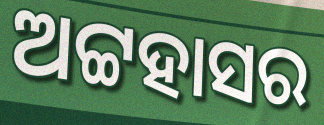
ଅଟ୍ଟହାସର